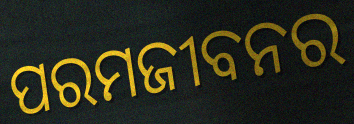
ପରମଜୀବନର